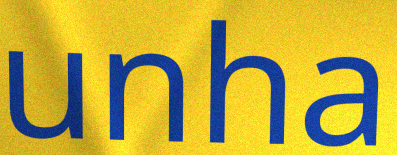
unha